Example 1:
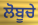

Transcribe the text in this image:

ਲੋਬੂਚੇ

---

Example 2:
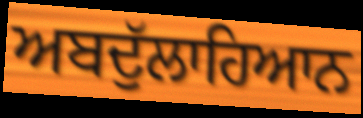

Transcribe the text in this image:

ਅਬਦੁੱਲਾਹਿਆਨ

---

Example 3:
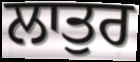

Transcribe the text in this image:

ਲਾਤੁਰ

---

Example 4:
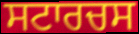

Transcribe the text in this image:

ਸਟਾਰਚਸ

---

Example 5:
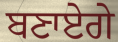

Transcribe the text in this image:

ਬਣਾਏਗੇ